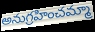
అనుగ్రహించమ్మా